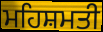
ਮਹਿਸ਼ਮਤੀ